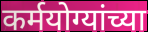
कर्मयोग्यांच्या